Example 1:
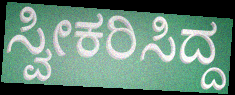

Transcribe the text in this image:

ಸ್ವೀಕರಿಸಿದ್ದ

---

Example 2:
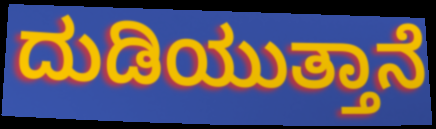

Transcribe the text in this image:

ದುಡಿಯುತ್ತಾನೆ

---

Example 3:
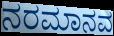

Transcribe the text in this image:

ನರಮಾನವ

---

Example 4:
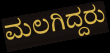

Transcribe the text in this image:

ಮಲಗಿದ್ದರು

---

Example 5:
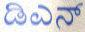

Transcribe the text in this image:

ಡಿಎನ್